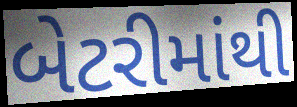
બેટરીમાંથી